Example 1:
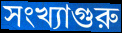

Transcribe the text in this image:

সংখ্যাগুরু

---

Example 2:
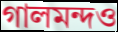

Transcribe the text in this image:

গালমন্দও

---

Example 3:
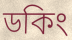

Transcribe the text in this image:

ডকিং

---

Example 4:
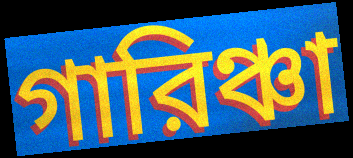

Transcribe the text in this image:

গারিঞ্চা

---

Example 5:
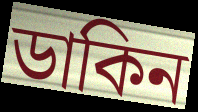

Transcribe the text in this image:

ডাকিন